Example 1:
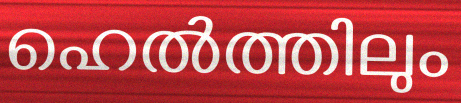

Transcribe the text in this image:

ഹെൽത്തിലും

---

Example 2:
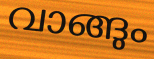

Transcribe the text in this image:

വാങ്ങും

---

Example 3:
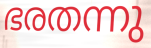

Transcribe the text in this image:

ഭരതന്നു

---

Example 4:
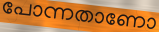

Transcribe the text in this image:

പോന്നതാണോ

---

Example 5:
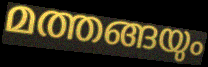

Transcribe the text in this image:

മത്തങ്ങയും